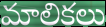
మాలికలు